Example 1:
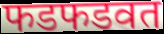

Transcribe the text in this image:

फडफडवत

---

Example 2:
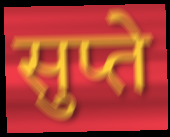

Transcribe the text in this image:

सुप्ते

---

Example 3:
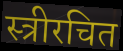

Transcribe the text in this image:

स्त्रीरचित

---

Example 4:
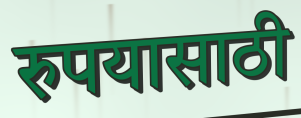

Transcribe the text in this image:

रुपयासाठी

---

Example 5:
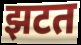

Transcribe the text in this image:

झटत